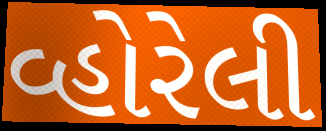
વ્હોરેલી